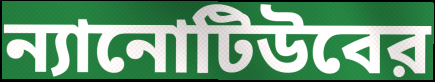
ন্যানোটিউবের